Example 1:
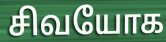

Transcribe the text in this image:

சிவயோக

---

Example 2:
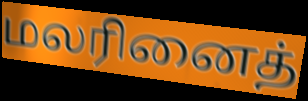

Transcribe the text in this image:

மலரினைத்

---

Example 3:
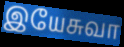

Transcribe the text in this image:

இயேசுவா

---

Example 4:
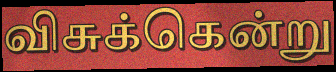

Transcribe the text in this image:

விசுக்கென்று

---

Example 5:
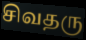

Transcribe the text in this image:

சிவதரு